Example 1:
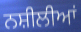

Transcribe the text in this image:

ਨਸ਼ੀਲੀਆਂ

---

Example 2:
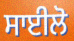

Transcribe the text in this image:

ਸਾਈਲੋ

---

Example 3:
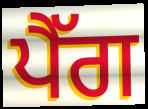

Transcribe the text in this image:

ਪੈੱਗ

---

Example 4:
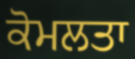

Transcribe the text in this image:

ਕੋਮਲਤਾ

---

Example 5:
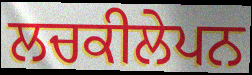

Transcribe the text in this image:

ਲਚਕੀਲੇਪਨ